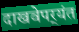
दाखवेपर्यंत